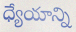
ధ్యేయాన్ని